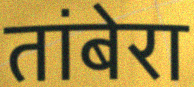
तांबेरा